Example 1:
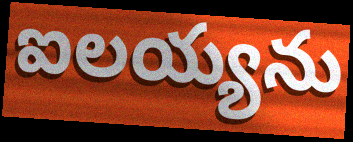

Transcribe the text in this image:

ఐలయ్యను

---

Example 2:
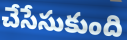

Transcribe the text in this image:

చేసేసుకుంది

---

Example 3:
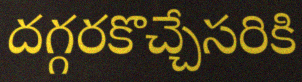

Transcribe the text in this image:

దగ్గరకొచ్చేసరికి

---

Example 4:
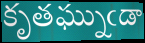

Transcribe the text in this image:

కృతఘ్నుఁడా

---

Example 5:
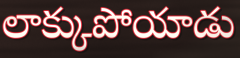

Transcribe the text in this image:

లాక్కుపోయాడు